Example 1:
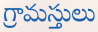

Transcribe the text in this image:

గ్రామస్తులు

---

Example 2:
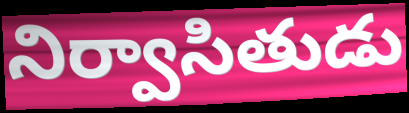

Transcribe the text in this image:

నిర్వాసితుడు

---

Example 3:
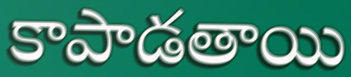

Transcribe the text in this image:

కాపాడతాయి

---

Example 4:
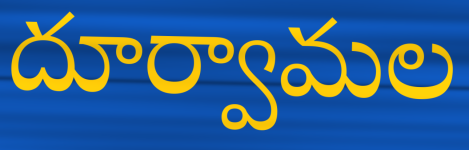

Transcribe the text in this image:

దూర్వామల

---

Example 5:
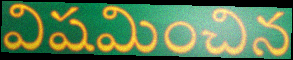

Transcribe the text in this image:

విషమించిన